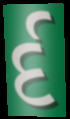
ર્દ